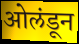
ओलंडून